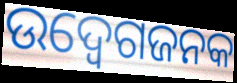
ଉଦ୍ବେଗଜନକ